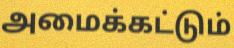
அமைக்கட்டும்